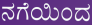
ನಗೆಯಿಂದ